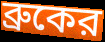
ব্রুকের